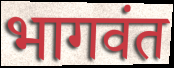
भागवंत